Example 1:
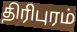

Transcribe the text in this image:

திரிபுரம்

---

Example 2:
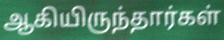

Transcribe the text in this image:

ஆகியிருந்தார்கள்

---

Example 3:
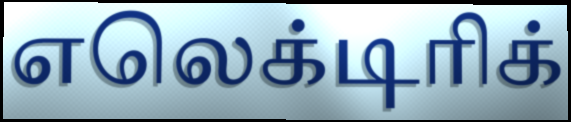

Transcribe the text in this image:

எலெக்டிரிக்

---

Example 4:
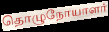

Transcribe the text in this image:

தொழுநோயாளர்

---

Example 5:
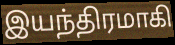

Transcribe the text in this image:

இயந்திரமாகி